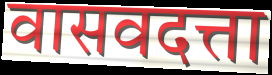
वासवदत्ता